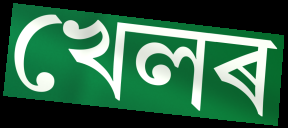
খেলৰ